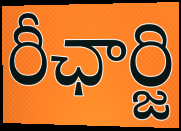
రీఛార్జి